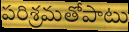
పరిశ్రమతోపాటు